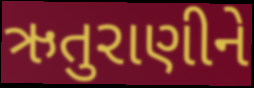
ઋતુરાણીને